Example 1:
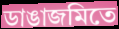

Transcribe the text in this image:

ডাঙাজমিতে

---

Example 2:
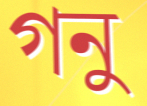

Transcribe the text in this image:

গনু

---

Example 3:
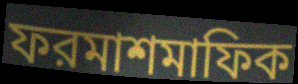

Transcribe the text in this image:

ফরমাশমাফিক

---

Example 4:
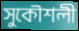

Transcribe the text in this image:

সুকৌশলী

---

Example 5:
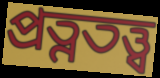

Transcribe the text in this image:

প্রত্নতত্ত্ব